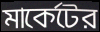
মার্কেটের